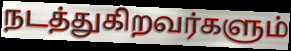
நடத்துகிறவர்களும்